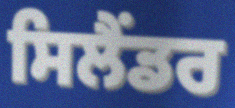
ਸਿਲੈਂਡਰ